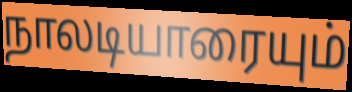
நாலடியாரையும்